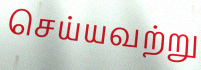
செய்யவற்று